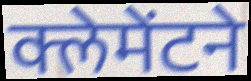
क्लेमेंटने